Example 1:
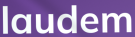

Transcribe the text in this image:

laudem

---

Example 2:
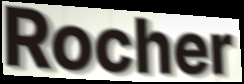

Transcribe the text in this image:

Rocher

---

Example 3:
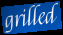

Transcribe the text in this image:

grilled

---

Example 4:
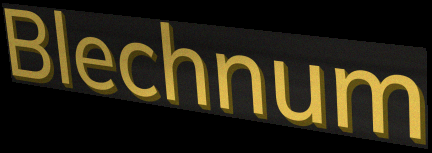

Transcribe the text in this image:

Blechnum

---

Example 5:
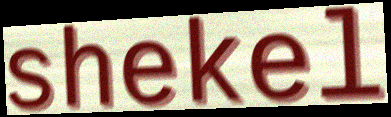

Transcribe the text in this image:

shekel